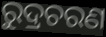
ରୁଦ୍ରଚରଣ